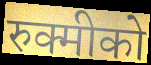
रुक्मीको